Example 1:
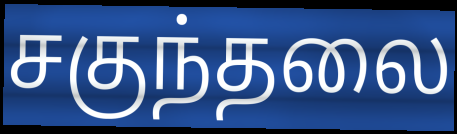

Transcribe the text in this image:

சகுந்தலை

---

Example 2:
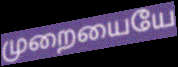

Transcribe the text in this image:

முறையையே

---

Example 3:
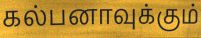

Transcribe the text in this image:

கல்பனாவுக்கும்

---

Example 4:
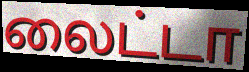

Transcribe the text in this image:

லைட்டா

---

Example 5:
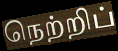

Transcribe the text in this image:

நெற்றிப்